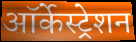
ऑर्केस्ट्रेशन